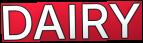
DAIRY